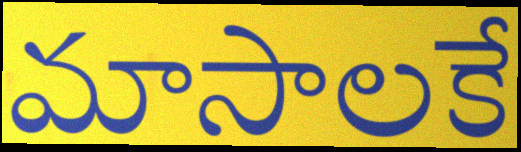
మాసాలకే